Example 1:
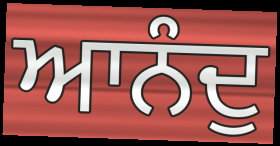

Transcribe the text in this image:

ਆਨੰਦੁ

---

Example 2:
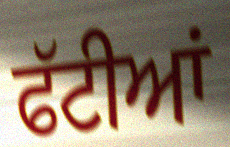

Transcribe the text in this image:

ਫੱਟੀਆਂ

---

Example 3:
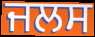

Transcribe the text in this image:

ਜਲਸ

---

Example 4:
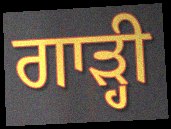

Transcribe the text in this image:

ਗਾੜ੍ਹੀ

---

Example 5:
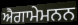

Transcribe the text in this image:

ਐਗਾਮੇਮਨਨ